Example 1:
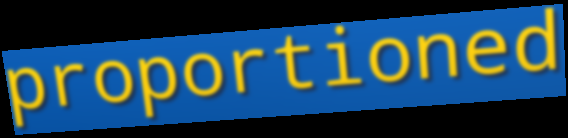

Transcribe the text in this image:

proportioned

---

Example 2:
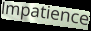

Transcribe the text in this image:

Impatience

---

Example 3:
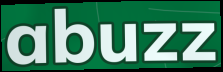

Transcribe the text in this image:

abuzz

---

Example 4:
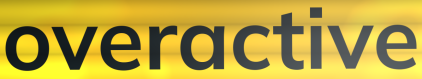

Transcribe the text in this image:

overactive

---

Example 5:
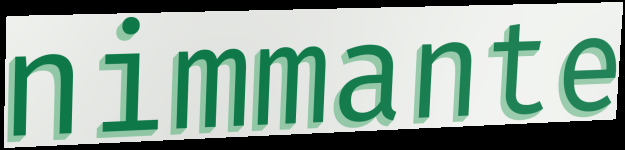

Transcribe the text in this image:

nimmante